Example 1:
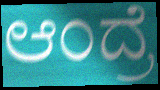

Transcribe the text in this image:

ಆಂದ್ರೆ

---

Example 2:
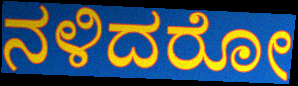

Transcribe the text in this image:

ನಳಿದರೋ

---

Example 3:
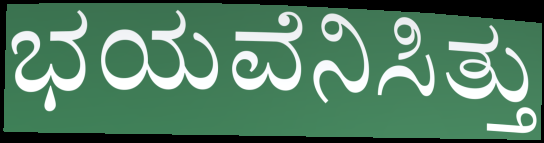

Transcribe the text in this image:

ಭಯವೆನಿಸಿತ್ತು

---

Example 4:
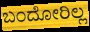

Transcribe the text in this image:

ಬಂದೋರಿಲ್ಲ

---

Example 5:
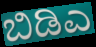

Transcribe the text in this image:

ಬಿಡಿಎ